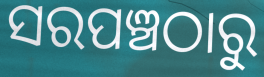
ସରପଞ୍ଚଠାରୁ